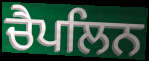
ਚੈਪਲਿਨ